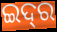
ଇଦ୍‍ର